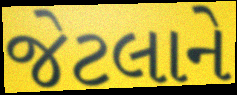
જેટલાને